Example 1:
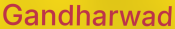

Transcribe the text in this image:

Gandharwad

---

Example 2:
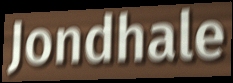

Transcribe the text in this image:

Jondhale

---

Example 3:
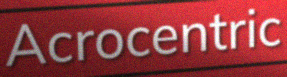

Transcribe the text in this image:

Acrocentric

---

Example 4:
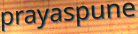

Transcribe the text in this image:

prayaspune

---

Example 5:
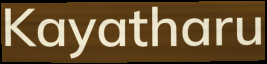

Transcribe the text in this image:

Kayatharu